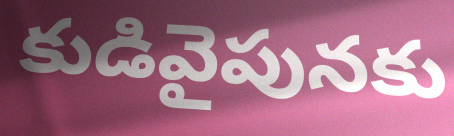
కుడివైపునకు